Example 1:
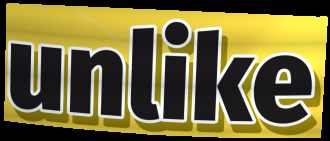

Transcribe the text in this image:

unlike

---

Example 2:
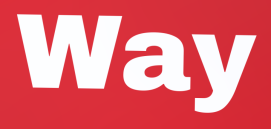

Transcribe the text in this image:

Way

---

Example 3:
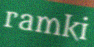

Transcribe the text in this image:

ramki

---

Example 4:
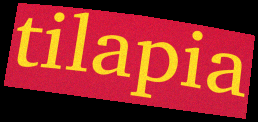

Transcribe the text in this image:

tilapia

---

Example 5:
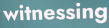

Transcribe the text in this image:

witnessing